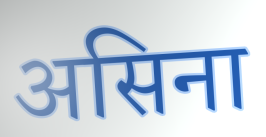
असिना